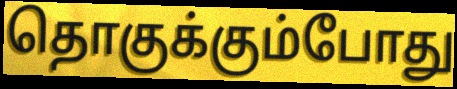
தொகுக்கும்போது